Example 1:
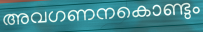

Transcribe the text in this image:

അവഗണനകൊണ്ടും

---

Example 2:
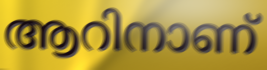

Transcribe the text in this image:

ആറിനാണ്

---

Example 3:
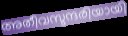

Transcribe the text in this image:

അതീവസുന്ദരിയായി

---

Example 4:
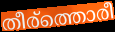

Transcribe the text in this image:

തീര്ത്തൊരീ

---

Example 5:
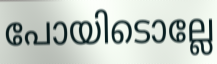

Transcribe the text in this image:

പോയിടൊല്ലേ